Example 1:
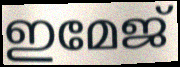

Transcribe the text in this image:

ഇമേജ്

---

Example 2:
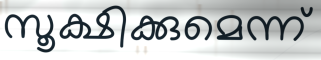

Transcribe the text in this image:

സൂക്ഷിക്കുമെന്ന്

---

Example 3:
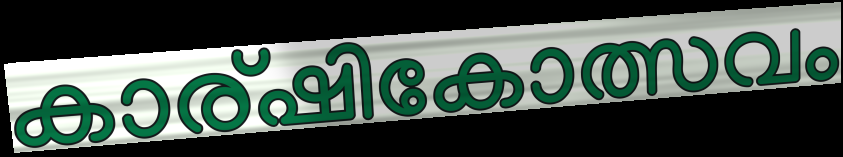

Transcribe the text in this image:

കാര്ഷികോത്സവം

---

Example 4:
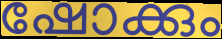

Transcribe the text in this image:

ഷോക്കും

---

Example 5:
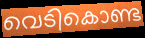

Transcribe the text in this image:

വെടികൊണ്ട